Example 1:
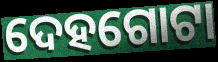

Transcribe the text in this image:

ଦେହଗୋଟା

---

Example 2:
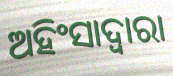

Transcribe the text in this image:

ଅହିଂସାଦ୍ୱାରା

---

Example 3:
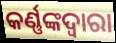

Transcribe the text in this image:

କର୍ଣ୍ଣଙ୍କଦ୍ୱାରା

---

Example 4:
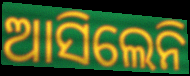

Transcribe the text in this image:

ଆସିଲେନି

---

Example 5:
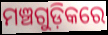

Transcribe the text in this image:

ମଞ୍ଚଗୁଡ଼ିକରେ